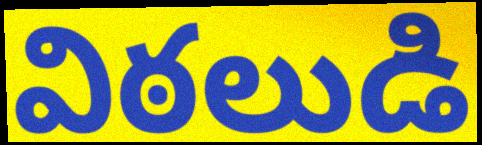
విఠలుడి